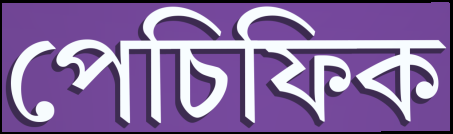
পেচিফিক